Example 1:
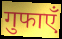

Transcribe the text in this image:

गुफाएँ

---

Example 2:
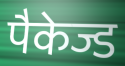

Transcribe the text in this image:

पैकेज्ड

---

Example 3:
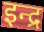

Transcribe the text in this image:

इन्द्र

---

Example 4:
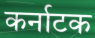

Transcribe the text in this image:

कर्नाटक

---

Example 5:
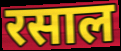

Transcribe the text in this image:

रसाल